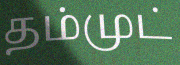
தம்முட்